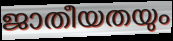
ജാതീയതയും